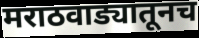
मराठवाड्यातूनच